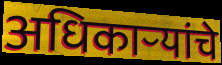
अधिकाऱ्यांचे